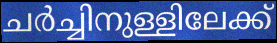
ചർച്ചിനുള്ളിലേക്ക്